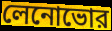
লেনোভোর